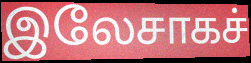
இலேசாகச்